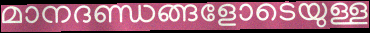
മാനദണ്ഡങ്ങളോടെയുള്ള